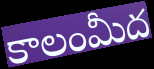
కాలంమీద